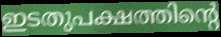
ഇടതുപക്ഷത്തിന്റെ